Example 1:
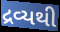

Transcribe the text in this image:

દ્રવ્યથી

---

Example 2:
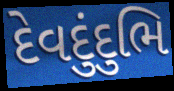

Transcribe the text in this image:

દેવદુંદુભિ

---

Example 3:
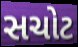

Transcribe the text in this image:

સચોટ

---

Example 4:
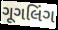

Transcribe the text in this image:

ગૂગલિંગ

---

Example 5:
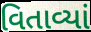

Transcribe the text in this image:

વિતાવ્યાં